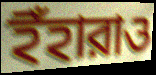
ইঁহারাও